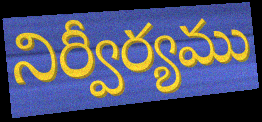
నిర్వీర్యము